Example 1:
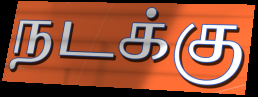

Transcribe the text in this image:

நடக்கு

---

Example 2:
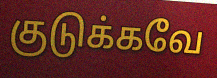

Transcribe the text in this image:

குடுக்கவே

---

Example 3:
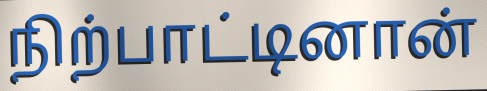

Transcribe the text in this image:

நிற்பாட்டினான்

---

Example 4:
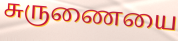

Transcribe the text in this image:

சுருணையை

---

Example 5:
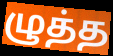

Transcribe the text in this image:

ழுத்த